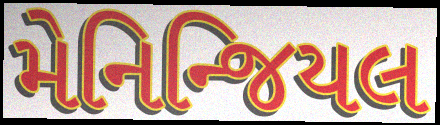
મેનિન્જિયલ